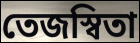
তেজস্বিতা